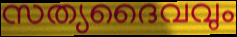
സത്യദൈവവും